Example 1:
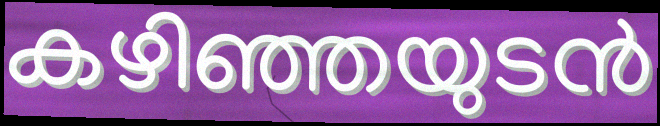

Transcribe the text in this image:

കഴിഞ്ഞയുടൻ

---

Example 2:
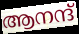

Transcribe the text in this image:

ആനന്ദ്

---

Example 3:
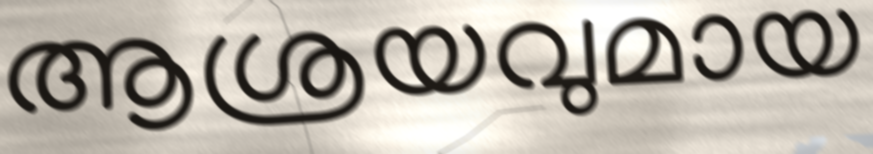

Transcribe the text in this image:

ആശ്രയവുമായ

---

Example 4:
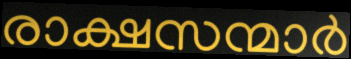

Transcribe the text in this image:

രാക്ഷസന്മാർ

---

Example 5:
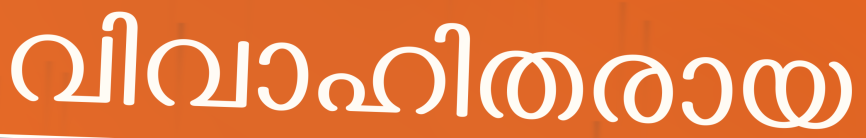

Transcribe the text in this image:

വിവാഹിതരായ